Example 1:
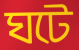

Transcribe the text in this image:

ঘটে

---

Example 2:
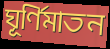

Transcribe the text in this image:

ঘূর্ণিমাতন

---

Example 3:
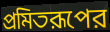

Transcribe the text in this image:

প্রমিতরূপের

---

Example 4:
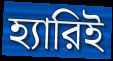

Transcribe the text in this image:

হ্যারিই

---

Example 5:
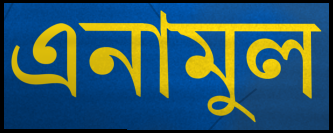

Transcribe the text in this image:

এনামুল